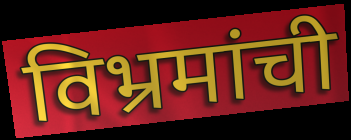
विभ्रमांची